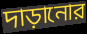
দাড়ানোর